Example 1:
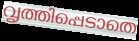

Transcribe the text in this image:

വൃത്തിപ്പെടാതെ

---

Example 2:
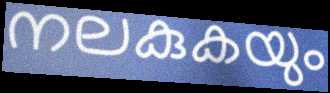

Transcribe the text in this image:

നലകുകയും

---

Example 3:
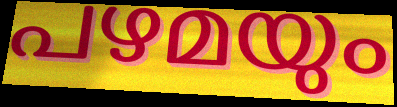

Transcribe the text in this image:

പഴമയും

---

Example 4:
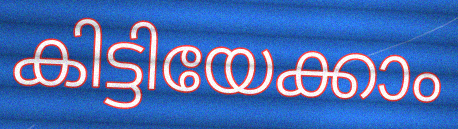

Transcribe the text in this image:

കിട്ടിയേക്കാം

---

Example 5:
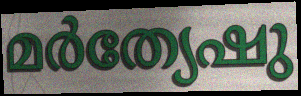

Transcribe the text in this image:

മർത്യേഷു